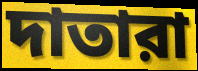
দাতারা